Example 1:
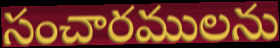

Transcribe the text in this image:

సంచారములను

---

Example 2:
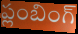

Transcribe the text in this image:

ప్లంబింగ్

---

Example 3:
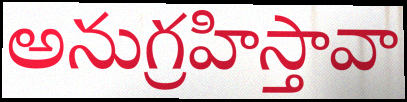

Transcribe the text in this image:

అనుగ్రహిస్తావా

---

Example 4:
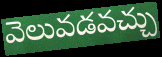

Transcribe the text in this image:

వెలువడవచ్చు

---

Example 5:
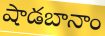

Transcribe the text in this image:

షాడబానాం